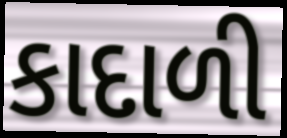
કાદાળી